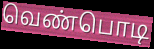
வெண்பொடி